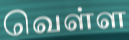
வெள்ள